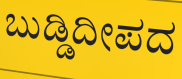
ಬುಡ್ಡಿದೀಪದ